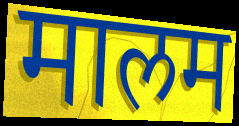
मालम